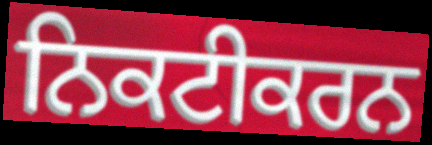
ਨਿਕਟੀਕਰਨ